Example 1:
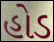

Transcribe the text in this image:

હોડ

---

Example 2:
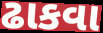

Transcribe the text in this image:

ઢાકવા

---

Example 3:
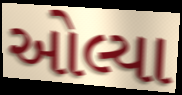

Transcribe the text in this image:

ઓલ્યા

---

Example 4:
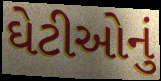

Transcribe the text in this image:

ઘેટીઓનું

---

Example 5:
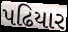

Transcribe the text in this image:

પઢિયાર